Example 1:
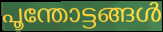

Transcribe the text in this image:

പൂന്തോട്ടങ്ങൾ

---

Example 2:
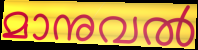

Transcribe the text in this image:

മാനുവൽ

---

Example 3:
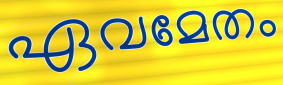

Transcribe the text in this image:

ഏവമേതം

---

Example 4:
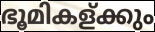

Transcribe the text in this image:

ഭൂമികള്ക്കും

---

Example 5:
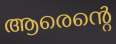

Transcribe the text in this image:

ആരെന്റെ